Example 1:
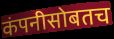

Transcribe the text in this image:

कंपनीसोबतच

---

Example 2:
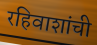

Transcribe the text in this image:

रहिवाशांची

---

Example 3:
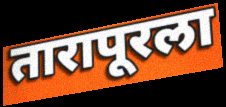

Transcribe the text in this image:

तारापूरला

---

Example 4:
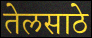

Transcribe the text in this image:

तेलसाठे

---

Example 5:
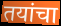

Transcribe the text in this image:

तयांचा